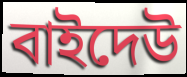
বাইদেউ